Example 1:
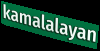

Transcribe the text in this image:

kamalalayan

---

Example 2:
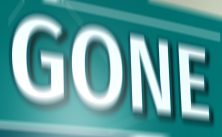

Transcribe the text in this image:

GONE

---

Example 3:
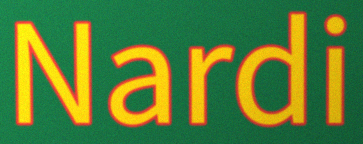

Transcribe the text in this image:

Nardi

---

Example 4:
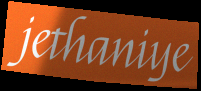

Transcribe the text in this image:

jethaniye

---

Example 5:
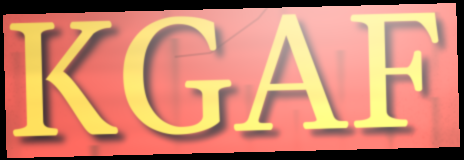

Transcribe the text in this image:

KGAF